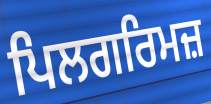
ਪਿਲਗਰਿਮਜ਼